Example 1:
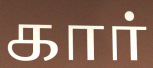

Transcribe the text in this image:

கார்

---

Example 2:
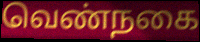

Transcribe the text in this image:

வெண்நகை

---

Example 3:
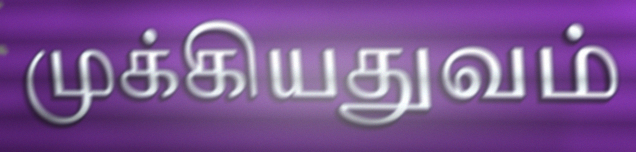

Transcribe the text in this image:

முக்கியதுவம்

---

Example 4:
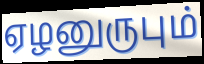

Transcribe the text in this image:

ஏழனுருபும்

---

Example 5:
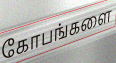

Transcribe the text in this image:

கோபங்களை